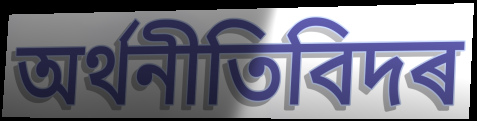
অৰ্থনীতিবিদৰ